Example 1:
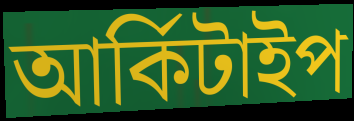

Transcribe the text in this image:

আৰ্কিটাইপ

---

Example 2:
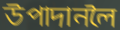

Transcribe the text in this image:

উপাদানলৈ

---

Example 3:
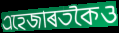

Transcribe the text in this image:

এহেজাৰতকৈও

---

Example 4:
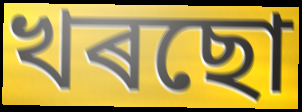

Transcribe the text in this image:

খৰছো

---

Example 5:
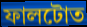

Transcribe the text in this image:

ফালটোত